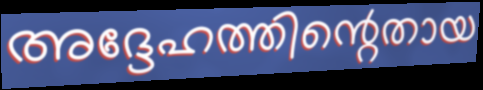
അദ്ദേഹത്തിന്റെതായ